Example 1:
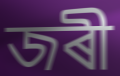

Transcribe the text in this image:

জৰী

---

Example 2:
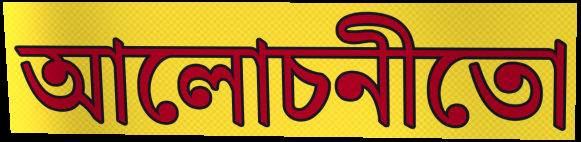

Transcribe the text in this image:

আলোচনীতো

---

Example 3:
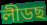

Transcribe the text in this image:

লীডছ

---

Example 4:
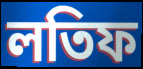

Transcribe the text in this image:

লতিফ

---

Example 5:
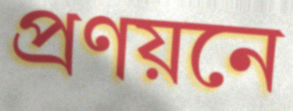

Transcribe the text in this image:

প্ৰণয়নে